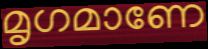
മൃഗമാണേ